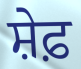
ਸ਼ੇਫ਼